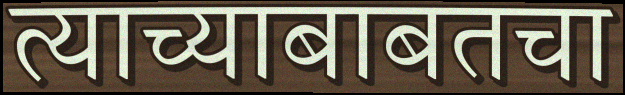
त्याच्याबाबतचा